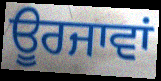
ਊਰਜਾਵਾਂ